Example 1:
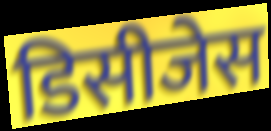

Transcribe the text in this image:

डिसीजेस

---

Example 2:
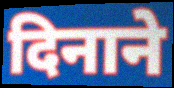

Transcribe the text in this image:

दिनाने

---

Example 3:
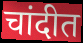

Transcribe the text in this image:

चांदीत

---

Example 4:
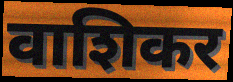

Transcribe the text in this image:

वाशिकर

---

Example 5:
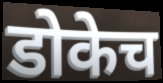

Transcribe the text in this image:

डोकेच